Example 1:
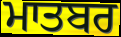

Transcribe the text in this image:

ਮਾਤਬਰ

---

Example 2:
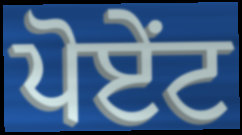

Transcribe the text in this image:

ਪੋਏਂਟ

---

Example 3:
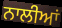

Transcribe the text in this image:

ਨਾਲੀਆਂ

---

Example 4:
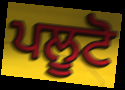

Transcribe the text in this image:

ਪਲੂਟੋ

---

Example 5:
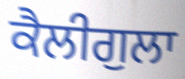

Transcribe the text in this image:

ਕੈਲੀਗੁਲਾ